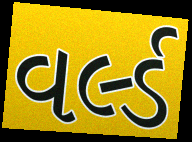
વર્લ્ડ